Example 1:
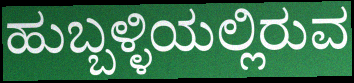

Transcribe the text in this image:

ಹುಬ್ಬಳ್ಳಿಯಲ್ಲಿರುವ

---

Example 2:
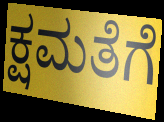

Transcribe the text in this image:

ಕ್ಷಮತೆಗೆ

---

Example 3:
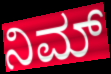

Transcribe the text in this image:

ನಿಮ್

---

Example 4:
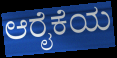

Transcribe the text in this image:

ಆರೈಕೆಯ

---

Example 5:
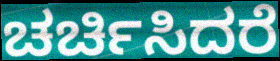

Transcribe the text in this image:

ಚರ್ಚಿಸಿದರೆ